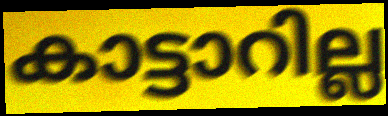
കാട്ടാറില്ല